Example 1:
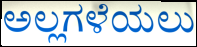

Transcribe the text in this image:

ಅಲ್ಲಗಳೆಯಲು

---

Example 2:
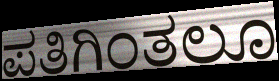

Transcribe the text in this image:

ಪತಿಗಿಂತಲೂ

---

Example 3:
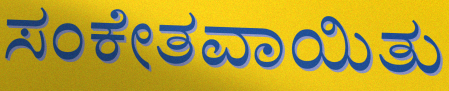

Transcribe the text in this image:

ಸಂಕೇತವಾಯಿತು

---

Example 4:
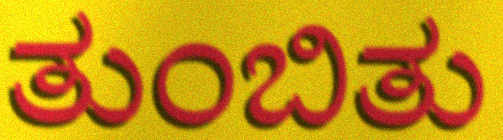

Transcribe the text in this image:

ತುಂಬಿತು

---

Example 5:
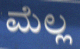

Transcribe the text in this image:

ಮೆಲ್ಲ